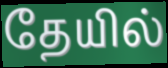
தேயில்